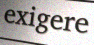
exigere